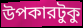
উপকারটুকু